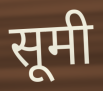
सूमी